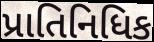
પ્રાતિનિધિક